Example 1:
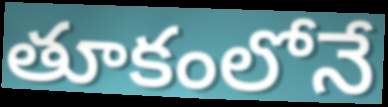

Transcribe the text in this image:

తూకంలోనే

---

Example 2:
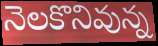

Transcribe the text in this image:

నెలకొనివున్న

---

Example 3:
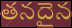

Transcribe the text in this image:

తనదైన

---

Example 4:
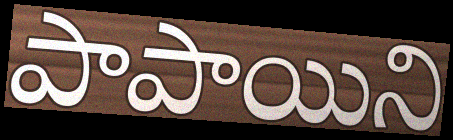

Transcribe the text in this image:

పాపాయిని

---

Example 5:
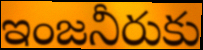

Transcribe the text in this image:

ఇంజనీరుకు